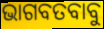
ଭାଗବତବାବୁ